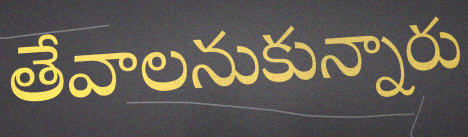
తేవాలనుకున్నారు